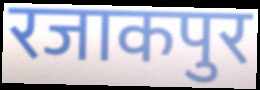
रजाकपुर